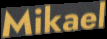
Mikael